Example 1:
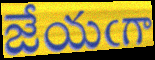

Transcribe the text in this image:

జేయఁగా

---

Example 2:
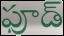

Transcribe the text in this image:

ఫూడ్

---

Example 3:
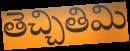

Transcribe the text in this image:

తెచ్చితిమి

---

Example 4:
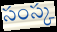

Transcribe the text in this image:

సంస్క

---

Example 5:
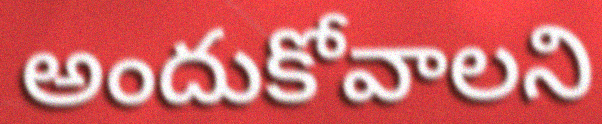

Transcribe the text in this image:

అందుకోవాలని